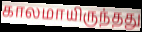
காலமாயிருந்தது